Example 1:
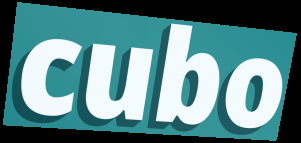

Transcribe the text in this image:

cubo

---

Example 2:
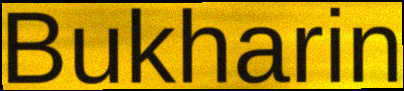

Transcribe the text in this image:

Bukharin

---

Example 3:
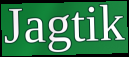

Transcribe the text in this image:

Jagtik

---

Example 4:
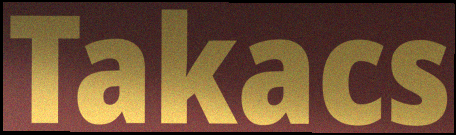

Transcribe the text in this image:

Takacs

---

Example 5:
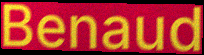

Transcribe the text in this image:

Benaud